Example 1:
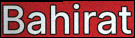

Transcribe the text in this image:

Bahirat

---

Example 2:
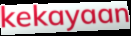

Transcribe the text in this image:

kekayaan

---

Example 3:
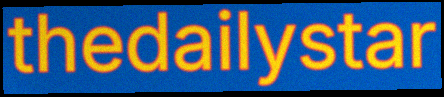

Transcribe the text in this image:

thedailystar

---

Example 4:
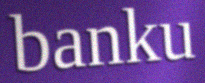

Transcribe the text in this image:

banku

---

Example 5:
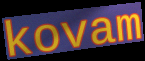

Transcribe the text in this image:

kovam